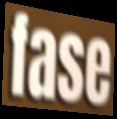
fase